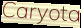
Caryota